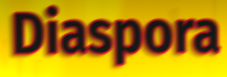
Diaspora